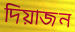
দিয়াজন